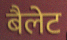
बैलेट